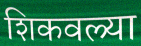
शिकवल्या